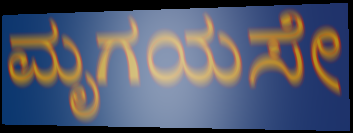
ಮೃಗಯಸೇ